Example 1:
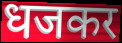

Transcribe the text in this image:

धजकर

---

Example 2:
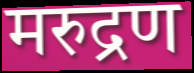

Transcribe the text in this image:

मरुद्रण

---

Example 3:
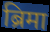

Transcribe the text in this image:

ब्रिमा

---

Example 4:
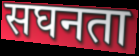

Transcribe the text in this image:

सघनता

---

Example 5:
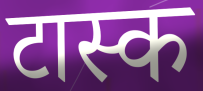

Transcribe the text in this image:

टास्क